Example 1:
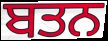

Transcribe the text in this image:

ਬਤਨ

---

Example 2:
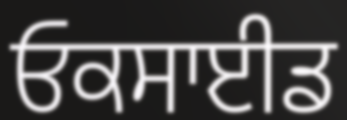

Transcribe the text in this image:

ਓਕਸਾਈਡ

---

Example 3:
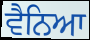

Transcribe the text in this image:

ਵੈਨਿਆ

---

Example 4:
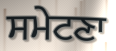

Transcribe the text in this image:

ਸਮੇਟਣਾ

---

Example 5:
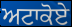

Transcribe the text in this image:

ਅਟਾਕੋਏ